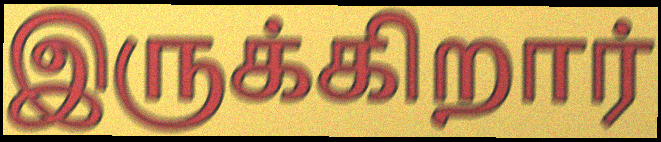
இருக்கிறார்